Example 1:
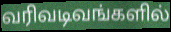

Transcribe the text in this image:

வரிவடிவங்களில்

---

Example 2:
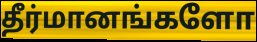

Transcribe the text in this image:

தீர்மானங்களோ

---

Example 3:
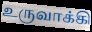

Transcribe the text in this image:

உருவாக்கி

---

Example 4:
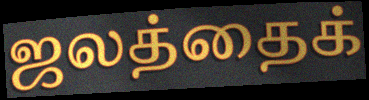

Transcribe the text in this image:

ஜலத்தைக்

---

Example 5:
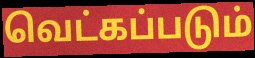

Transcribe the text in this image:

வெட்கப்படும்